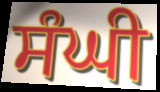
ਸੰਘੀ